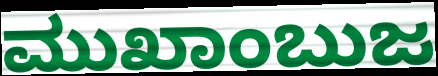
ಮುಖಾಂಬುಜ